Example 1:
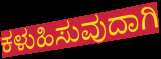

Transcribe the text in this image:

ಕಳುಹಿಸುವುದಾಗಿ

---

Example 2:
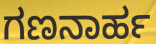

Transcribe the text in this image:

ಗಣನಾರ್ಹ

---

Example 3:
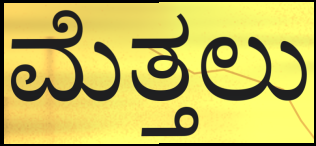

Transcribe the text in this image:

ಮೆತ್ತಲು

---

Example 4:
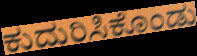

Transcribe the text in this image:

ಕುದುರಿಸಿಕೊಂಡು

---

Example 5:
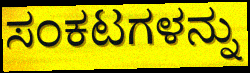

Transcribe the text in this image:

ಸಂಕಟಗಳನ್ನು